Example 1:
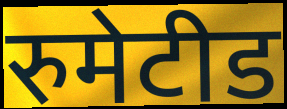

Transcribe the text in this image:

रुमेटीड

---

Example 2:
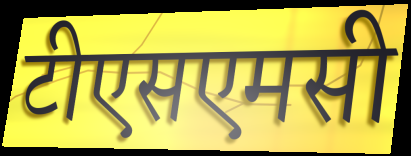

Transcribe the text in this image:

टीएसएमसी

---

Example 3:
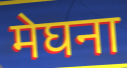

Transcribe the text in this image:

मेघना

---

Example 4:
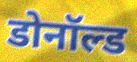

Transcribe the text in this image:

डोनॉल्ड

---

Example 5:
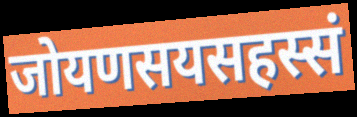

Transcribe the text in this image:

जोयणसयसहस्सं